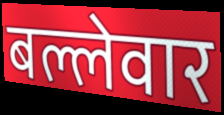
बल्लेवार